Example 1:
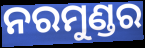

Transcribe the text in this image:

ନରମୁଣ୍ଡର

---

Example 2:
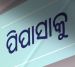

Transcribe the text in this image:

ପିପାସାକୁ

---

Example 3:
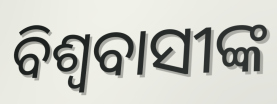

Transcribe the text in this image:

ବିଶ୍ଵବାସୀଙ୍କ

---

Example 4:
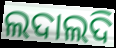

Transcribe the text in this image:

ଲଦାଲଦି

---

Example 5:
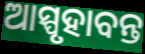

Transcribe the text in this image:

ଆସ୍ପୃହାବନ୍ତ